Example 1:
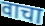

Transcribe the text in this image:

वाचा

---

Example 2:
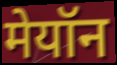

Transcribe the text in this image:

मेयॉन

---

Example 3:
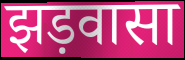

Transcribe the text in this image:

झड़वासा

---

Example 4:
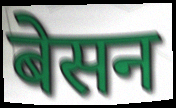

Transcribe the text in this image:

बेसन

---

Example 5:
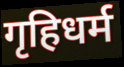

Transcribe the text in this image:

गृहिधर्म